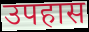
उपहास